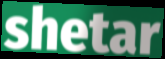
shetar